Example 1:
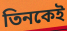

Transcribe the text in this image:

তিনকেই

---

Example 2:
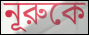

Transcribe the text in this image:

নূরুকে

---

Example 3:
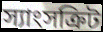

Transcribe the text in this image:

স্যাংসক্রিট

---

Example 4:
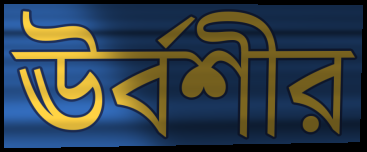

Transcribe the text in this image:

ঊর্বশীর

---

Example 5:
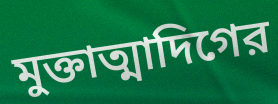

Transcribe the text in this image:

মুক্তাত্মাদিগের